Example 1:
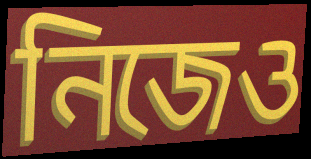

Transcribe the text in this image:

নিজেও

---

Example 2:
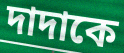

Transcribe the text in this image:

দাদাকে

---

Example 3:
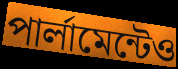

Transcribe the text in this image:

পার্লামেন্টেও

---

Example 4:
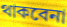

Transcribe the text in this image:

থাকবেনা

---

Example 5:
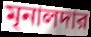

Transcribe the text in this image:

মৃনালদার